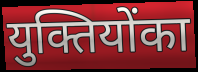
युक्तियोंका